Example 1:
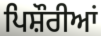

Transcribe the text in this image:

ਪਿਸ਼ੌਰੀਆਂ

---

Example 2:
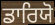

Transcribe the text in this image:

ਡਾਰਿਯੋ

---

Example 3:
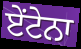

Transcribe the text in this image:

ਏਂਟੇਨਾ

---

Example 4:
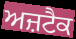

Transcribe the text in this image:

ਅਜ਼ਟੈਕ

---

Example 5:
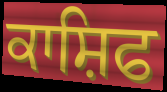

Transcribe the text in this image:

ਕਾਸ਼ਿਫ